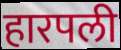
हारपली